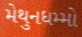
મેથુનધમ્મો